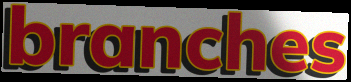
branches